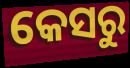
କେସରୁ